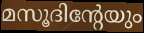
മസൂദിന്റേയും